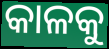
କାଳକୁ